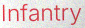
Infantry